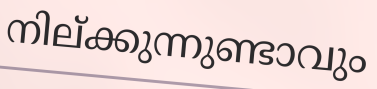
നില്ക്കുന്നുണ്ടാവും